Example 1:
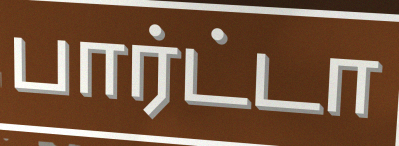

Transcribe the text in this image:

பார்ட்டா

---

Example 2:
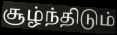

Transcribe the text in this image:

சூழ்ந்திடும்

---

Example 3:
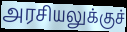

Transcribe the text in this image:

அரசியலுக்குச்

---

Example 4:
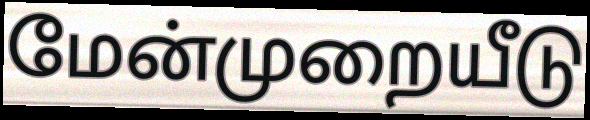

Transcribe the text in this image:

மேன்முறையீடு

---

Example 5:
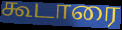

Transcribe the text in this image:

கூடாரை